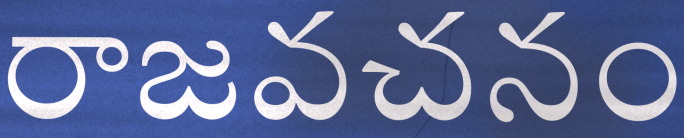
రాజవచనం